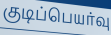
குடிப்பெயர்வு